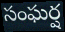
సంఘర్ష